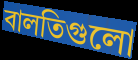
বালতিগুলো